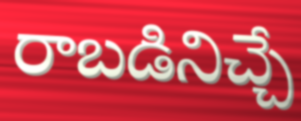
రాబడినిచ్చే